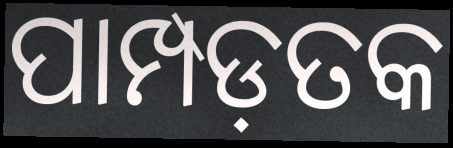
ପାମ୍ପଡ଼ତକ